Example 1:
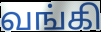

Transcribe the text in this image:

வங்கி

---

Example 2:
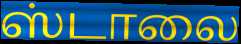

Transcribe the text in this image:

ஸ்டாலை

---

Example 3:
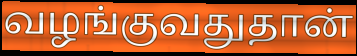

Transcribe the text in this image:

வழங்குவதுதான்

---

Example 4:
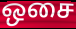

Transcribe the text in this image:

ஒசை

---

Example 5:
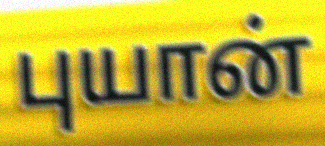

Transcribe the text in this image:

புயான்